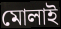
মোলাই